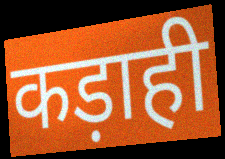
कड़ाही